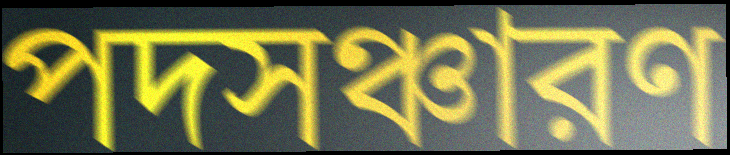
পদসঞ্চারণ